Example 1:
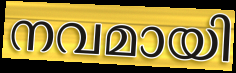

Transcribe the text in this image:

നവമായി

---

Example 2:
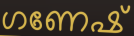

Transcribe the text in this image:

ഗണേഷ്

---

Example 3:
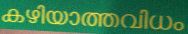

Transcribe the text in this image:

കഴിയാത്തവിധം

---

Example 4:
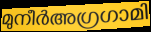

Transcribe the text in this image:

മുനീർഅഗ്രഗാമി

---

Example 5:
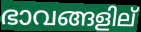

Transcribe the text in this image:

ഭാവങ്ങളില്